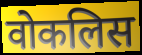
वोकलिस